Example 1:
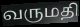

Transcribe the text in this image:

வருமதி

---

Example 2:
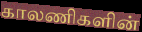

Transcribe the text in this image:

காலணிகளின்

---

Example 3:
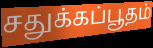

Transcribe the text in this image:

சதுக்கப்பூதம்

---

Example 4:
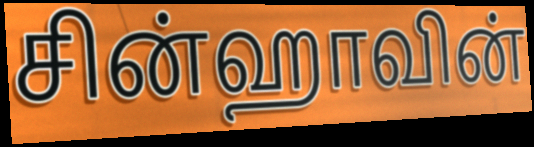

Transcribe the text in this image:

சின்ஹாவின்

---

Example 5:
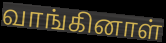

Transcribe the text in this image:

வாங்கினாள்